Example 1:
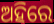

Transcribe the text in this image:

ଅହିରେ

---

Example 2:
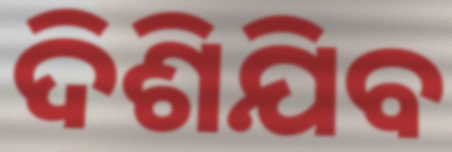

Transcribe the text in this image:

ଦିଶିଯିବ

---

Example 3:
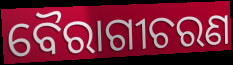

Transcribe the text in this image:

ବୈରାଗୀଚରଣ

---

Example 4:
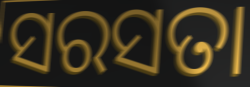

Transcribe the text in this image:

ସରସତା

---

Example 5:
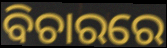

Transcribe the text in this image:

ବିଚାରରେ